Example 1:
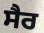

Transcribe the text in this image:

ਸੈਰ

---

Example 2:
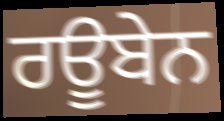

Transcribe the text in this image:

ਰਊਬੇਨ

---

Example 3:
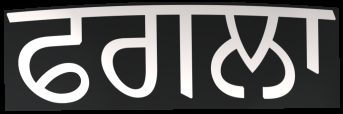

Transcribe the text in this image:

ਫਗਲਾ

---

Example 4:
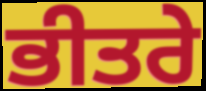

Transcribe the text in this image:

ਭੀਤਰੇ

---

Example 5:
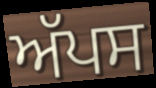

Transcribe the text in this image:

ਅੱਪਸ